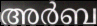
അർബ